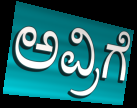
ಅವ್ರಿಗೆ